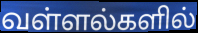
வள்ளல்களில்